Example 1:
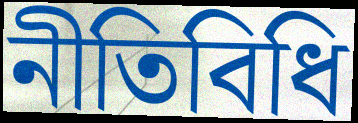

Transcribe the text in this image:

নীতিবিধি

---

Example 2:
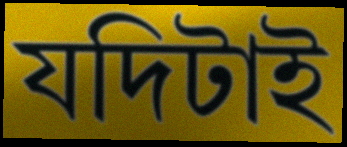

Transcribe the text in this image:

যদিটাই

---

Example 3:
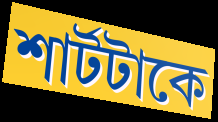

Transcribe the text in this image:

শার্টটাকে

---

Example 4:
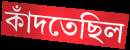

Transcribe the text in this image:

কাঁদতেছিল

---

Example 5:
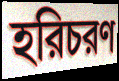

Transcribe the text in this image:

হরিচরণ